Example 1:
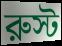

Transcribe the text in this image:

রুস্ট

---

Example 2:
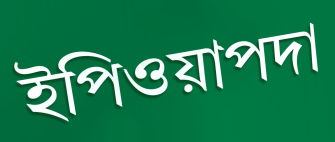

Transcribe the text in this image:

ইপিওয়াপদা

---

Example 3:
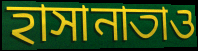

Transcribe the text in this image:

হাসানাতাও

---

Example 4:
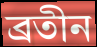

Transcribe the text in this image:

ব্রতীন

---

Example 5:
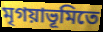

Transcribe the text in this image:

মৃগয়াভূমিতে